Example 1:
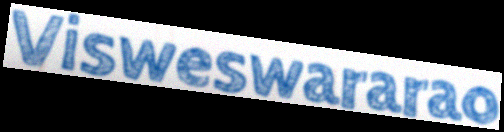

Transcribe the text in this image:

Visweswararao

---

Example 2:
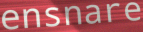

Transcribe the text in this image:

ensnare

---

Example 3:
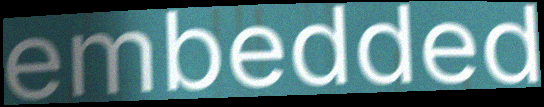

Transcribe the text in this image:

embedded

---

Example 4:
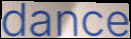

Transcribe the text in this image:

dance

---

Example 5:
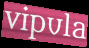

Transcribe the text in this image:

vipula